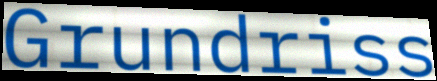
Grundriss